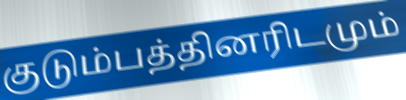
குடும்பத்தினரிடமும்